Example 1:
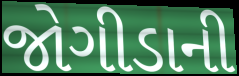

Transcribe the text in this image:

જોગીડાની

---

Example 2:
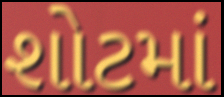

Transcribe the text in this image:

શોટમાં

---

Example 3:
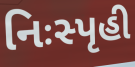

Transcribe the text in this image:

નિઃસ્પૃહી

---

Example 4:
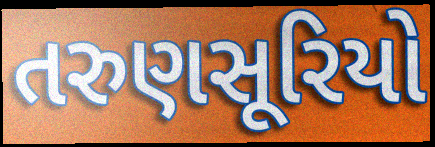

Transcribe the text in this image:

તરુણસૂરિયો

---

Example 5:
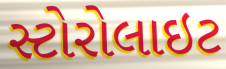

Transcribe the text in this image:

સ્ટોરોલાઇટ